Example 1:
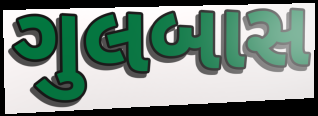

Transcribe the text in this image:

ગુલબાસ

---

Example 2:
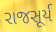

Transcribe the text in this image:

રાજસૂર્ય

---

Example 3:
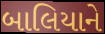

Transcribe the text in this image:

બાલિયાને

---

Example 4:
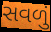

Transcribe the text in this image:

સવળું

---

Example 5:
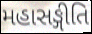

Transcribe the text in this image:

મહાસઙ્ગીતિ